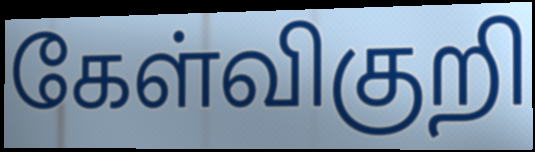
கேள்விகுறி